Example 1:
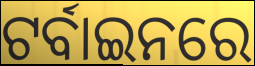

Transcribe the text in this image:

ଟର୍ବାଇନରେ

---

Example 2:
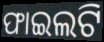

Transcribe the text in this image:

ଫାଇଲଟି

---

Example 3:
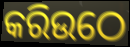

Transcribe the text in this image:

କରିଉଠେ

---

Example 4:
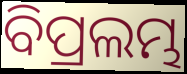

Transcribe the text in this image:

ବିପ୍ରଲମ୍ଭ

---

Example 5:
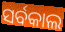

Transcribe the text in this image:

ସର୍ବକାଲ